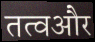
तत्वऔर